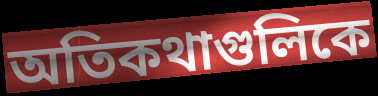
অতিকথাগুলিকে